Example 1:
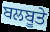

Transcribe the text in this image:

ਬਲਬੂਤੇ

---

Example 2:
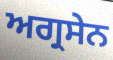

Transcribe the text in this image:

ਅਗ੍ਰਸੇਨ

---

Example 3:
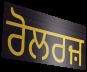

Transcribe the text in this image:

ਰੋਲਰਜ਼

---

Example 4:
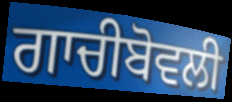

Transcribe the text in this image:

ਗਾਚੀਬੋਵਲੀ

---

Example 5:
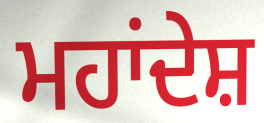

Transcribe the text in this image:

ਮਹਾਂਦੇਸ਼